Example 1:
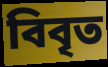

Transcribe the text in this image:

বিবৃত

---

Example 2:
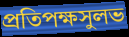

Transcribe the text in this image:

প্রতিপক্ষসুলভ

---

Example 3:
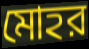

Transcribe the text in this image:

মোহর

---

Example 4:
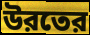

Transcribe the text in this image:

উরতের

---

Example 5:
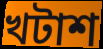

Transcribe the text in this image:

খটাশ